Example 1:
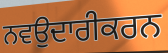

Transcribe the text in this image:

ਨਵਉਦਾਰੀਕਰਨ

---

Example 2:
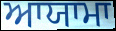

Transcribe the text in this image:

ਆਯਾਮਾ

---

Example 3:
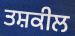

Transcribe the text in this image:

ਤਸ਼ਕੀਲ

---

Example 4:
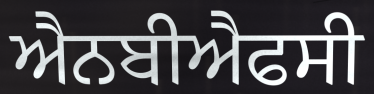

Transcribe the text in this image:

ਐਨਬੀਐਫਸੀ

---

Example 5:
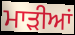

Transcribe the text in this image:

ਮਾੜੀਆਂ